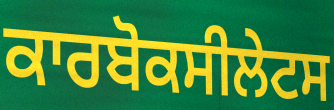
ਕਾਰਬੋਕਸੀਲੇਟਸ